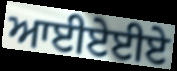
ਆਈਏਈਏ